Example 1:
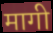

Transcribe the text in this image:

मागी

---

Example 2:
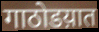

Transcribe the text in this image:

गाठोडय़ात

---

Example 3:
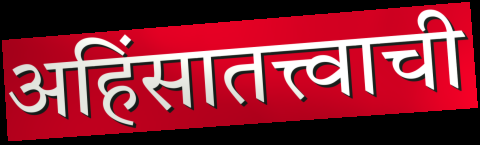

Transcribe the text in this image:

अहिंसातत्त्वाची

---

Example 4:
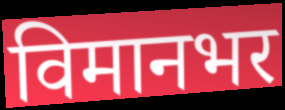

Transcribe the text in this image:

विमानभर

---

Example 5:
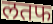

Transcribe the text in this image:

लतफ